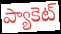
ప్యాకెట్